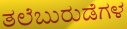
ತಲೆಬುರುಡೆಗಳ